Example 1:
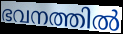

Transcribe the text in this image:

ഭവനത്തിൽ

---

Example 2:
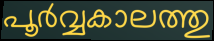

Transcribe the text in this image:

പൂർവ്വകാലത്തു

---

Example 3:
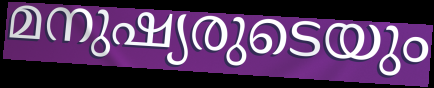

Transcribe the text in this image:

മനുഷ്യരുടെയും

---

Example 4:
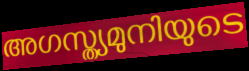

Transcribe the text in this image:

അഗസ്ത്യമുനിയുടെ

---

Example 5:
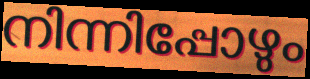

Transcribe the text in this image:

നിന്നിപ്പോഴും